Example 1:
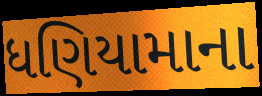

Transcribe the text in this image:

ધણિયામાના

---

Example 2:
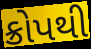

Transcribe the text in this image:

ક્રોપથી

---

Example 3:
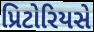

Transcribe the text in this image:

પ્રિટોરિયસે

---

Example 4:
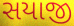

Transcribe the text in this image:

સયાજી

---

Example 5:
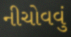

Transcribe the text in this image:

નીચોવવું